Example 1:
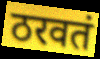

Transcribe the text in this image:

ठरवतं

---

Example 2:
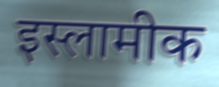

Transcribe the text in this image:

इस्लामीक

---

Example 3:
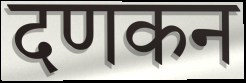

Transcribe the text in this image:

दणकन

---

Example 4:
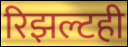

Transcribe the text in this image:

रिझल्टही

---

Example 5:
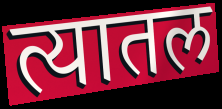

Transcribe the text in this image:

त्यातल